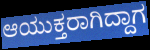
ಆಯುಕ್ತರಾಗಿದ್ದಾಗ